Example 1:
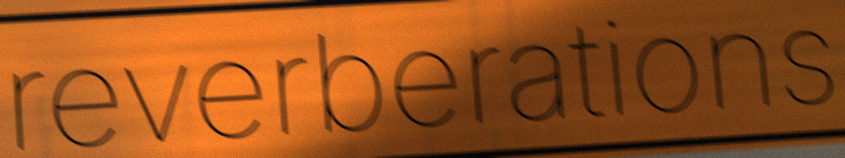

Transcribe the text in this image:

reverberations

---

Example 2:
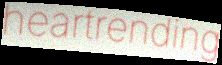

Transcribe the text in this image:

heartrending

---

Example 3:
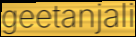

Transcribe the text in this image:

geetanjali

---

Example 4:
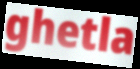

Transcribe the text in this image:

ghetla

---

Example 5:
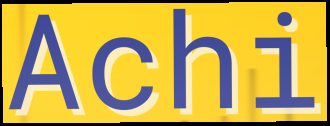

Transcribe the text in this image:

Achi